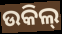
ଉକିଲ୍